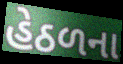
હેઠળના